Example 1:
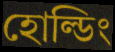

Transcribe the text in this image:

হোল্ডিং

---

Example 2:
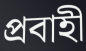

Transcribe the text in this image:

প্রবাহী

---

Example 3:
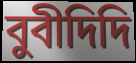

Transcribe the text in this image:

বুবীদিদি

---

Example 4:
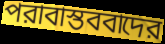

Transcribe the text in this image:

পরাবাস্তববাদের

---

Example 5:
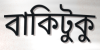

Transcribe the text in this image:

বাকিটুকু